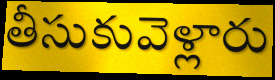
తీసుకువెళ్లారు